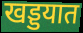
खड्डयात